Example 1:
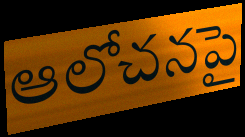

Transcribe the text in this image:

ఆలోచనపై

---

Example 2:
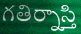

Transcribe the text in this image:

గతిర్నాస్తి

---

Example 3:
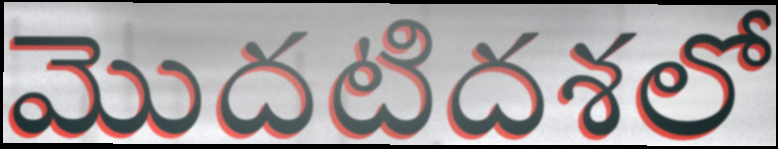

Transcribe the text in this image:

మొదటిదశలో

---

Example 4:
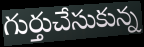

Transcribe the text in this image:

గుర్తుచేసుకున్న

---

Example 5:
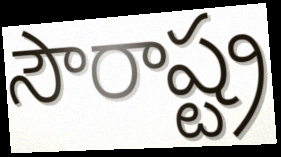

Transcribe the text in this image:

సౌరాష్ట్ర